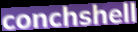
conchshell